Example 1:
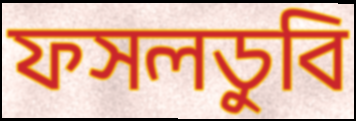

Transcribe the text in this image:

ফসলডুবি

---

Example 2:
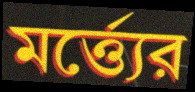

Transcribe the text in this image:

মর্ত্ত্যের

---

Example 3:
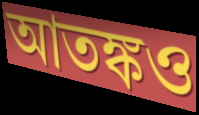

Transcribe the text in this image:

আতঙ্কও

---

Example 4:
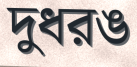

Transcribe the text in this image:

দুধরঙ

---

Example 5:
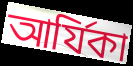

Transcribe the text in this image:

আর্যিকা